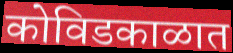
कोविडकाळात